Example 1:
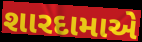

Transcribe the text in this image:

શારદામાએ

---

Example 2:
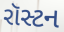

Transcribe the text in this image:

રૉસ્ટન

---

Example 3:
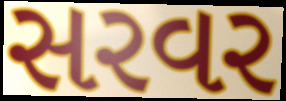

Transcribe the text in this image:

સરવર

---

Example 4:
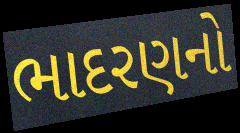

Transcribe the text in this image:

ભાદરણનો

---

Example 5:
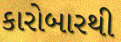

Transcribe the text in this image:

કારોબારથી